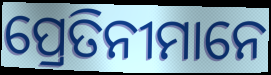
ପ୍ରେତିନୀମାନେ